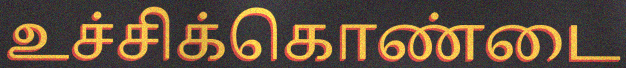
உச்சிக்கொண்டை